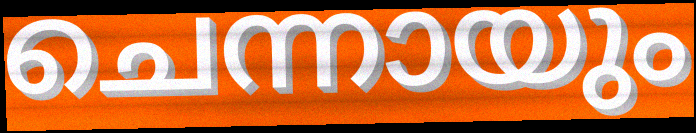
ചെന്നായും